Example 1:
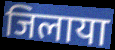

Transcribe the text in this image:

जिलाया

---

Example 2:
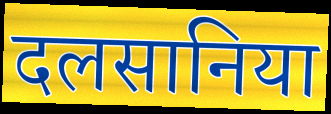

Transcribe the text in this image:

दलसानिया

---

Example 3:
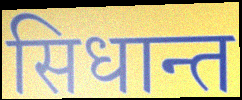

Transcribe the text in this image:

सिधान्त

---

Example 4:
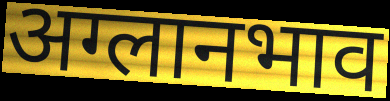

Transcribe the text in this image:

अग्लानभाव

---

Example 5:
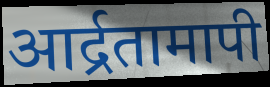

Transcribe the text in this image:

आर्द्रतामापी